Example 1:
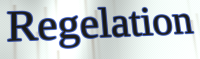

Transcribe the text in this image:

Regelation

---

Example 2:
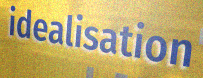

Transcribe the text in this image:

idealisation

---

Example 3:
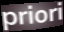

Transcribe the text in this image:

priori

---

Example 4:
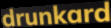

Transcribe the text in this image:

drunkard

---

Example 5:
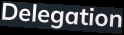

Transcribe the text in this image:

Delegation